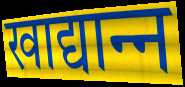
खाद्यान्‍न